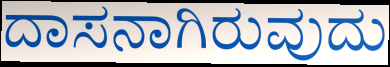
ದಾಸನಾಗಿರುವುದು